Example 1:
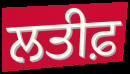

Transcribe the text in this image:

ਲਤੀਫ਼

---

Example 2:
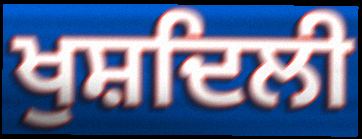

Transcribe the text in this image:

ਖੁਸ਼ਦਿਲੀ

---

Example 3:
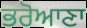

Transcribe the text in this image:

ਭਰੋਆਣਾ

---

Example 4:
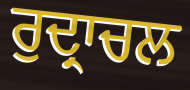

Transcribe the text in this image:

ਰੁਦ੍ਰਾਚਲ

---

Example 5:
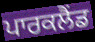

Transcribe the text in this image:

ਪਾਰਕਲੈਂਡ